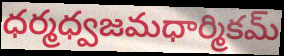
ధర్మధ్వజమధార్మికమ్